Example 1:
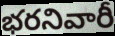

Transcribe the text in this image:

భరనివారీ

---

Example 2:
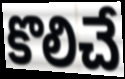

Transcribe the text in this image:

కొలిచే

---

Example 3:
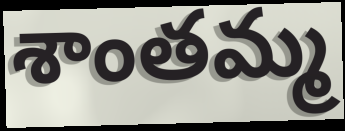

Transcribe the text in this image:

శాంతమ్మ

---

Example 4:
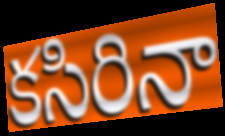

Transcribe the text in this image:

కసిరినా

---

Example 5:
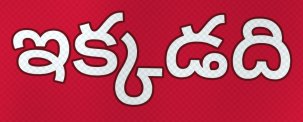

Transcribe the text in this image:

ఇక్కడది